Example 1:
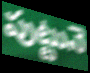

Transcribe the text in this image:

పుట్టునె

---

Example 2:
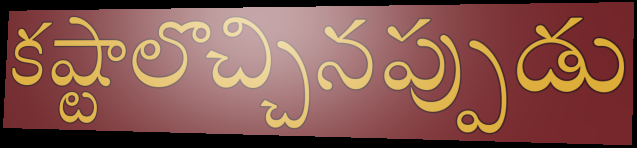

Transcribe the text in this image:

కష్టాలొచ్చినప్పుడు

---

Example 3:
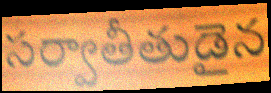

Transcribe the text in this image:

సర్వాతీతుడైన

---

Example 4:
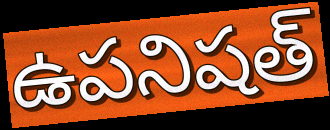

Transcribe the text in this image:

ఉపనిషత్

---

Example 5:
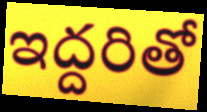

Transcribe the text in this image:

ఇద్దరితో